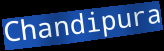
Chandipura